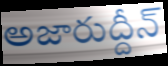
అజారుద్దీన్